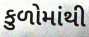
કુળોમાંથી